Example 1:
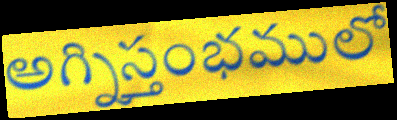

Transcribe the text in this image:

అగ్నిస్తంభములో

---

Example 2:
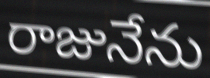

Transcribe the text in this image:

రాజునేను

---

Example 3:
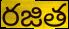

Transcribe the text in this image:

రజిత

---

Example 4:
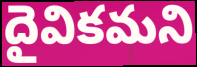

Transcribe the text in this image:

దైవికమని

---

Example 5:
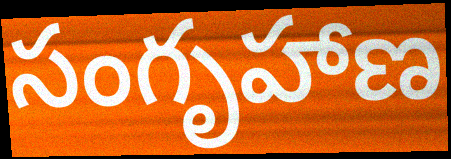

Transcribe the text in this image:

సంగృహాణ